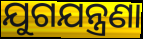
ଯୁଗଯନ୍ତ୍ରଣା